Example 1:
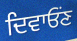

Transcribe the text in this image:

ਦਿਵਾਓੰਣ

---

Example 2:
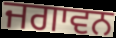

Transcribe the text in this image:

ਜਗਾਵਨ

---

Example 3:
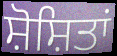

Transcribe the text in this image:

ਸ਼ੋਸ਼ਿਤਾਂ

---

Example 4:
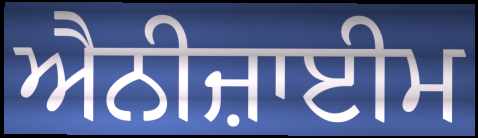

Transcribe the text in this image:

ਐਨੀਜ਼ਾਈਮ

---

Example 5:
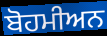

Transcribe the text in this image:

ਬੋਹਮੀਅਨ